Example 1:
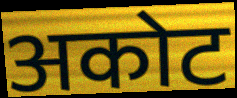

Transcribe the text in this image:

अकोट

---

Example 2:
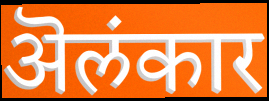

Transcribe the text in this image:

ऄलंकार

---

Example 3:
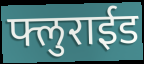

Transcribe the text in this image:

फ्लुराईड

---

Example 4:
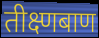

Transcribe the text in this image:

तीक्ष्णबाण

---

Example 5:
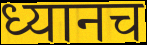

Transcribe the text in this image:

ध्यानच